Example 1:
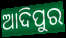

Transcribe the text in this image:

ଆଦିପୁର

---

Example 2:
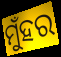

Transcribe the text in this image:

ମୁଁହର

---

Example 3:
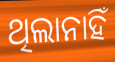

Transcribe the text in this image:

ଥିଲାନାହିଁ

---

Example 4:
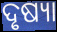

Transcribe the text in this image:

ଦୃଷ୍ୟା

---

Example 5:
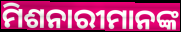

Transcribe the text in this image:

ମିଶନାରୀମାନଙ୍କ